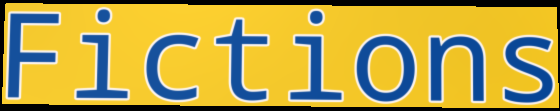
Fictions